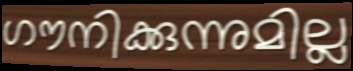
ഗൗനിക്കുന്നുമില്ല